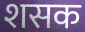
शसक